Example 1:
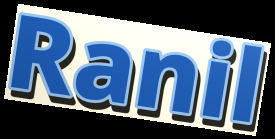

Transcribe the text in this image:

Ranil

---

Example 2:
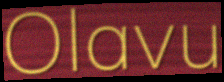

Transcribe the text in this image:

Olavu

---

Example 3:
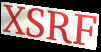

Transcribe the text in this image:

XSRF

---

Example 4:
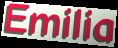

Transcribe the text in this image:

Emilia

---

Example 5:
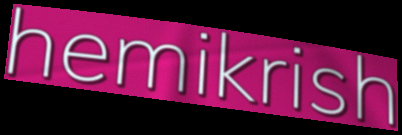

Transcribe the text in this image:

hemikrish